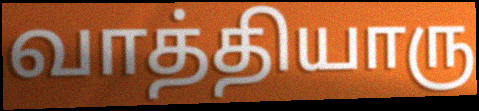
வாத்தியாரு